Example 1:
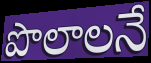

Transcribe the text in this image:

పొలాలనే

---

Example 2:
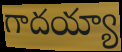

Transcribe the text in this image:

గాదయ్యా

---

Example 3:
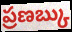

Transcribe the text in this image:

ప్రణబ్కు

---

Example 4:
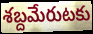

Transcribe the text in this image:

శబ్దమేరుటకు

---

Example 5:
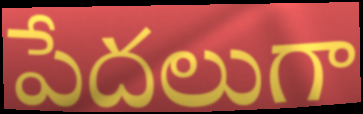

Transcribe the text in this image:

పేదలుగా